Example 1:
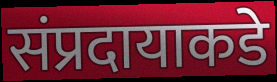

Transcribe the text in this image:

संप्रदायाकडे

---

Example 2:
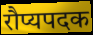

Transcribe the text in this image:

रौप्यपदक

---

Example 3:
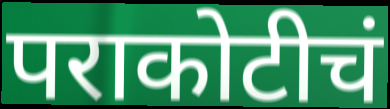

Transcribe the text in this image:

पराकोटीचं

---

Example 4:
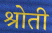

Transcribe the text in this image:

श्रोती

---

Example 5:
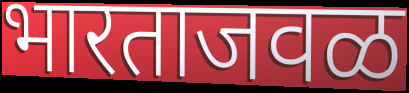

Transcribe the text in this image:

भारताजवळ